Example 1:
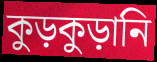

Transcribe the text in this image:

কুড়কুড়ানি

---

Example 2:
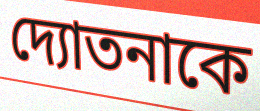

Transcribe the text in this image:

দ্যোতনাকে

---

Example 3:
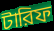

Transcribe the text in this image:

টারিফ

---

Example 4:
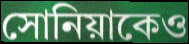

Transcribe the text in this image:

সোনিয়াকেও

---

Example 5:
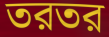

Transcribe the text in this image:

তরতর